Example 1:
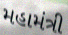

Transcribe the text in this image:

મહામંત્રી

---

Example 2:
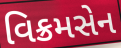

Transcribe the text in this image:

વિક્રમસેન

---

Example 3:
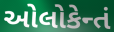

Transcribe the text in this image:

ઓલોકેન્તં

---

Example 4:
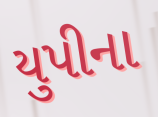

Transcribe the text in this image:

યુપીના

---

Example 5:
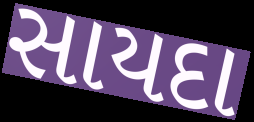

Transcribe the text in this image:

સાયદા